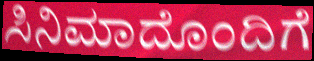
ಸಿನಿಮಾದೊಂದಿಗೆ